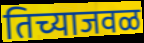
तिच्याजवळ